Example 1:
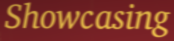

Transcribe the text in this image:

Showcasing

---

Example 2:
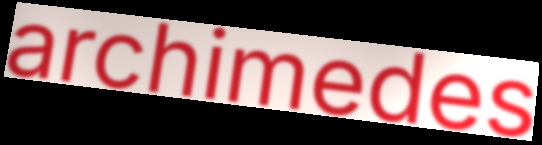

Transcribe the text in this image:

archimedes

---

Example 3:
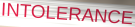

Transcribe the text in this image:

INTOLERANCE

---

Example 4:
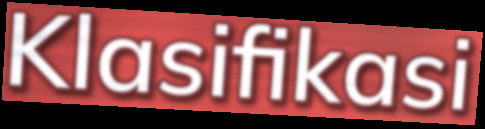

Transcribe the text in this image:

Klasifikasi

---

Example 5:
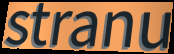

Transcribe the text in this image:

stranu